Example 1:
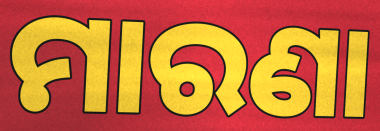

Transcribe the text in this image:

ମାରଣା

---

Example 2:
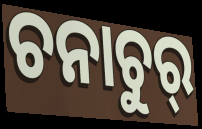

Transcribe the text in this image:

ଚନାଚୁର୍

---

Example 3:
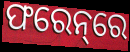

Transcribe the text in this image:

ଫରେନ୍‌ରେ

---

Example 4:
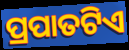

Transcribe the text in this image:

ପ୍ରପାତଟିଏ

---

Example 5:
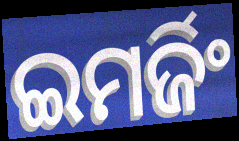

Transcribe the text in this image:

ଇମର୍ଜିଂ